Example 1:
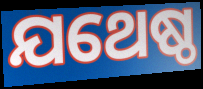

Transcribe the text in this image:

ଯଥେଷ୍ଠ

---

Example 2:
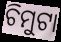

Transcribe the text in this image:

ଚିମୁଟା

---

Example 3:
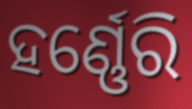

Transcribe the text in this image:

ହର୍ଣ୍ଣେରି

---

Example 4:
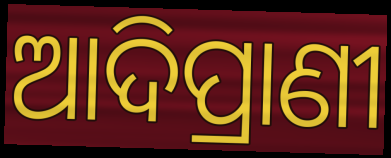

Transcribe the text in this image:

ଆଦିପ୍ରାଣୀ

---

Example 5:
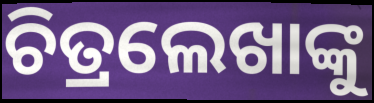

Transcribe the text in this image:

ଚିତ୍ରଲେଖାଙ୍କୁ